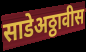
साडेअठ्ठावीस